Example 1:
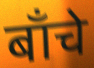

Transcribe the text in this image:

बाँचे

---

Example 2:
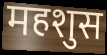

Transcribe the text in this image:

महशुस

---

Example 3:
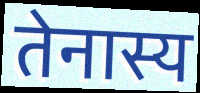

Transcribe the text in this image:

तेनास्य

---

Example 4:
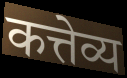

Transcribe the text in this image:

कत्तेव्य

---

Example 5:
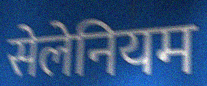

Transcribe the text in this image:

सेलेनियम